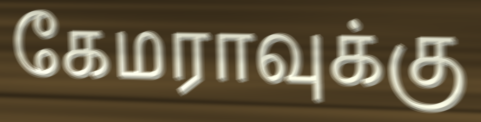
கேமராவுக்கு